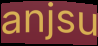
anjsu